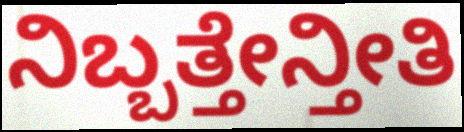
ನಿಬ್ಬತ್ತೇನ್ತೀತಿ